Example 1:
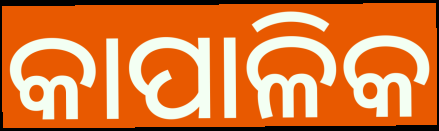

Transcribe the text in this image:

କାପାଳିକ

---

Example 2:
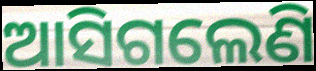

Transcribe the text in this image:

ଆସିଗଲେଣି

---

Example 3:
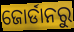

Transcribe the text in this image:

ଜୋର୍ଡାନରୁ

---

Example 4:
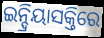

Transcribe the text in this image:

ଇନ୍ଦ୍ରିୟାସକ୍ତିରେ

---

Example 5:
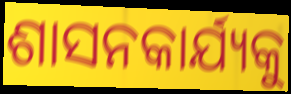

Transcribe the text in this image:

ଶାସନକାର୍ଯ୍ୟକୁ